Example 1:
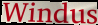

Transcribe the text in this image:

Windus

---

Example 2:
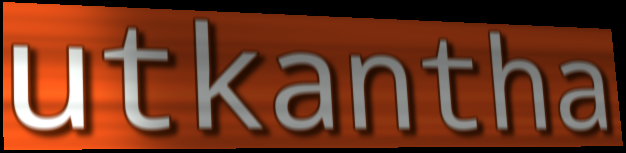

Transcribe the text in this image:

utkantha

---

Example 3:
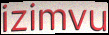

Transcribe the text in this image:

izimvu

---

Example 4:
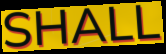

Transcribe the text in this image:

SHALL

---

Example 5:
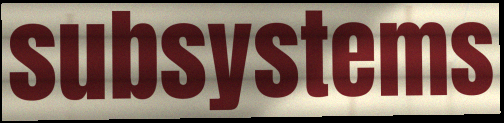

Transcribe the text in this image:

subsystems